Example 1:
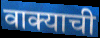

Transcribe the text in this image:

वाक्याची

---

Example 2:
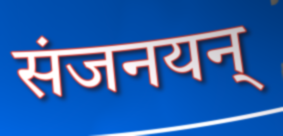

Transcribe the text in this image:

संजनयन्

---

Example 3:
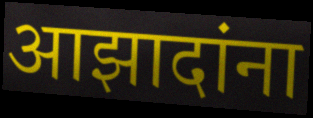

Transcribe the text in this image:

आझादांना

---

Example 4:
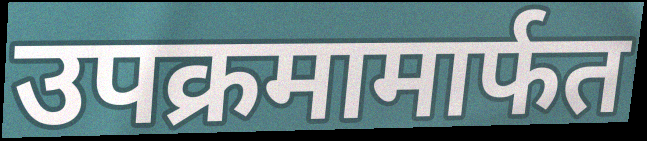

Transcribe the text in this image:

उपक्रमामार्फत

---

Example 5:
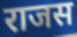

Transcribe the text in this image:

राजस